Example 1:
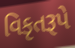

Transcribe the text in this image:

વિકૃતરૂપે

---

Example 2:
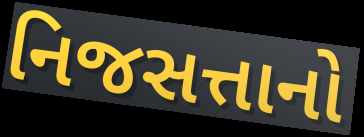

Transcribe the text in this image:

નિજસત્તાનો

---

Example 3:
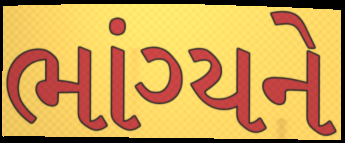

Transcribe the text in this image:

ભાંગ્યને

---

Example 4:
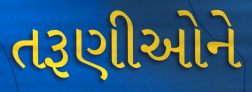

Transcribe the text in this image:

તરૂણીઓને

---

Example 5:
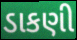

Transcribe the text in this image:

ડાકણી